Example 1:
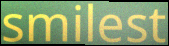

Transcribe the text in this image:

smilest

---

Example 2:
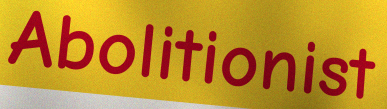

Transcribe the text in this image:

Abolitionist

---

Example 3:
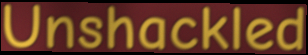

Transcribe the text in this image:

Unshackled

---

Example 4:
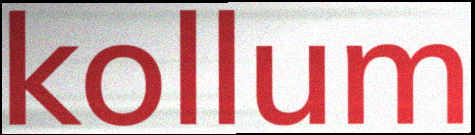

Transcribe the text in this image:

kollum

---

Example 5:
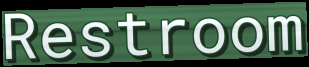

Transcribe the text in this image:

Restroom